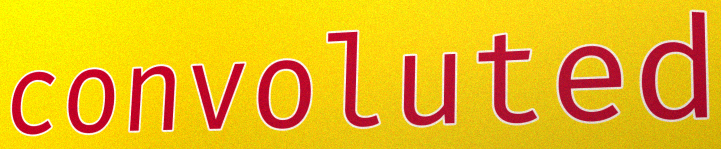
convoluted